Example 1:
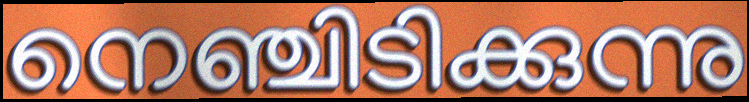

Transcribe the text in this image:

നെഞ്ചിടിക്കുന്നു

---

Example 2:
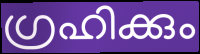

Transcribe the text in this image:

ഗ്രഹിക്കും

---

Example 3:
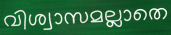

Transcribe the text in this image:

വിശ്വാസമല്ലാതെ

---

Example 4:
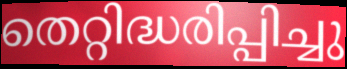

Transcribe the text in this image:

തെറ്റിദ്ധരിപ്പിച്ചു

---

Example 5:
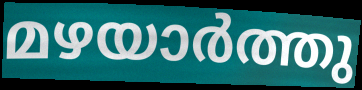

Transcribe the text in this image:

മഴയാർത്തു